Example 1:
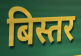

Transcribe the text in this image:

बिस्तर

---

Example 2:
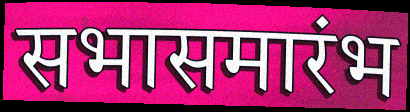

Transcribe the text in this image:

सभासमारंभ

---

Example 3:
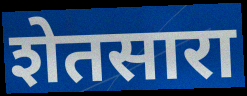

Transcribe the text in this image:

शेतसारा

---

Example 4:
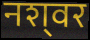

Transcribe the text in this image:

नश्वर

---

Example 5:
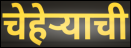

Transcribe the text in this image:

चेहेऱ्याची